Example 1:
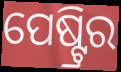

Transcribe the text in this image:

ପେଷ୍ଟ୍ରିର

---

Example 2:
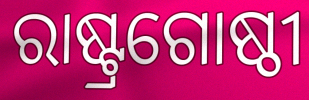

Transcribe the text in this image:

ରାଷ୍ଟ୍ରଗୋଷ୍ଠୀ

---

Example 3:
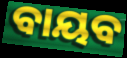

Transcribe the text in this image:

ବାୟବ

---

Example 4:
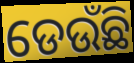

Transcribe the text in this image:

ଡେଉଁଛି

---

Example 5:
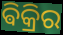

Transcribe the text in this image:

ଵିକ୍ରିର